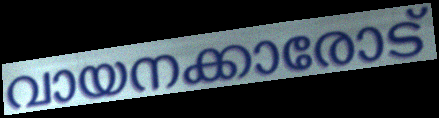
വായനക്കാരോട്